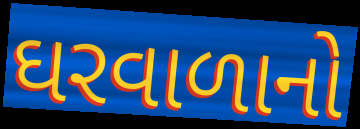
ઘરવાળાનો